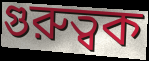
গুৰুত্বক